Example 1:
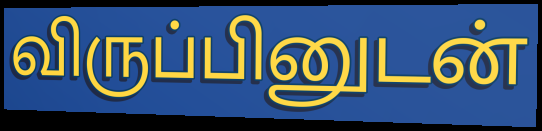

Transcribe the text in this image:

விருப்பினுடன்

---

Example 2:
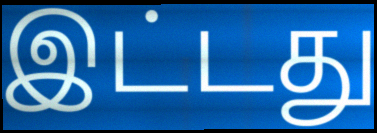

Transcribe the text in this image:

இட்டது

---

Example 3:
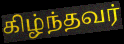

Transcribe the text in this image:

கிழ்ந்தவர்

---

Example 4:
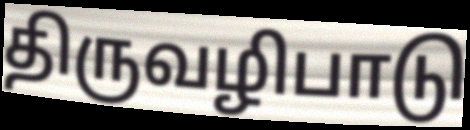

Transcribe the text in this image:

திருவழிபாடு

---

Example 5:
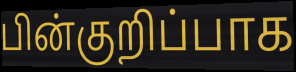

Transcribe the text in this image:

பின்குறிப்பாக